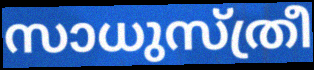
സാധുസ്ത്രീ